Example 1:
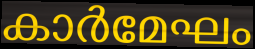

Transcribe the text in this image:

കാർമേഘം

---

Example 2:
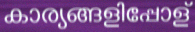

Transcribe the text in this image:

കാര്യങ്ങളിപ്പോള്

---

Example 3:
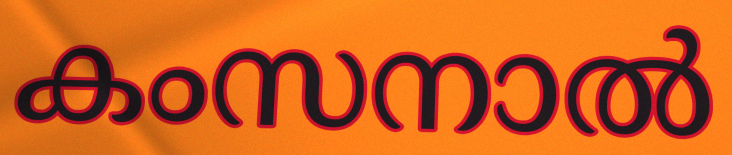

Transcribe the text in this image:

കംസനാൽ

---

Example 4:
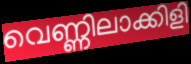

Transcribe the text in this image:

വെണ്ണിലാക്കിളി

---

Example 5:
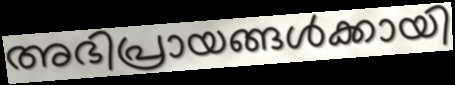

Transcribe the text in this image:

അഭിപ്രായങ്ങൾക്കായി